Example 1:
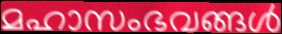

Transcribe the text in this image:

മഹാസംഭവങ്ങൾ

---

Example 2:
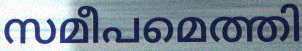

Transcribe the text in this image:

സമീപമെത്തി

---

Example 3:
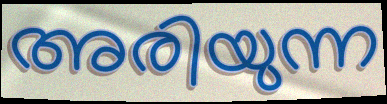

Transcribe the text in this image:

അരിയുന്ന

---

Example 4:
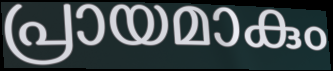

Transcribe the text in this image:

പ്രായമാകും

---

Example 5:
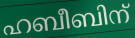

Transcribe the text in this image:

ഹബീബിന്